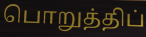
பொறுத்திப்